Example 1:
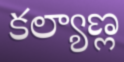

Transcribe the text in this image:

కల్యాణ్ల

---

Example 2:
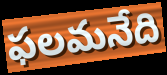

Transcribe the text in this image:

ఫలమనేది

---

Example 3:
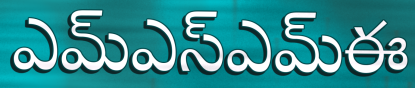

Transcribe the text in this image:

ఎమ్ఎస్ఎమ్ఈ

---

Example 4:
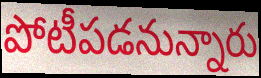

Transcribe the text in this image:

పోటీపడనున్నారు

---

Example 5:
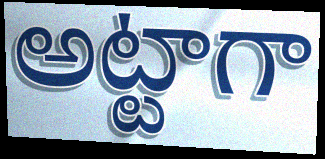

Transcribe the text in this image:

అట్టాగా